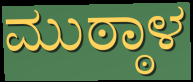
ಮುಠ್ಠಾಳ